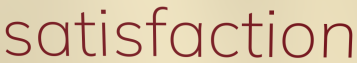
satisfaction